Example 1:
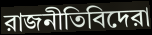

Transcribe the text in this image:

রাজনীতিবিদেরা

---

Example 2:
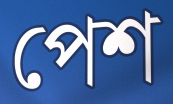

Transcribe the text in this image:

পেশ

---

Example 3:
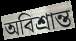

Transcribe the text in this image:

অবিশ্রান্ত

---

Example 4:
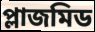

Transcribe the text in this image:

প্লাজমিড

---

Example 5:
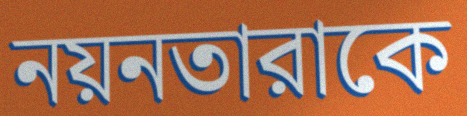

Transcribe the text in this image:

নয়নতারাকে